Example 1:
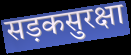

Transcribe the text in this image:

सड़कसुरक्षा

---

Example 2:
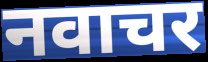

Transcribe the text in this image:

नवाचर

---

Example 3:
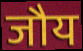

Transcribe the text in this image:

जौय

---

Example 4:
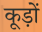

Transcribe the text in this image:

कूड़ों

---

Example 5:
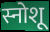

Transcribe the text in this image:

स्नोशू